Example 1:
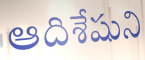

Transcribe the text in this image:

ఆదిశేషుని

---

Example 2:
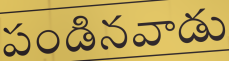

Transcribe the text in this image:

పండినవాడు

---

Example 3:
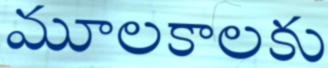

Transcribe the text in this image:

మూలకాలకు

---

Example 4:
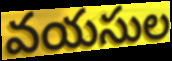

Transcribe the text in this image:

వయసుల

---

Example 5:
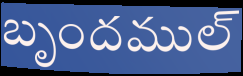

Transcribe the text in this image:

బృందముల్